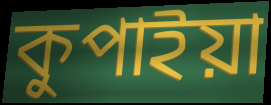
কুপাইয়া